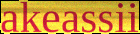
akeassii